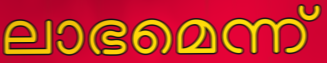
ലാഭമെന്ന്